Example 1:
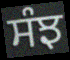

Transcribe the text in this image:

ਸੰਝ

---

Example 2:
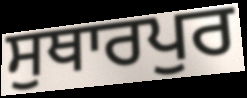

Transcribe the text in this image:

ਸੁਥਾਰਪੁਰ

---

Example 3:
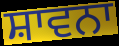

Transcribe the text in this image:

ਸ਼ਾਵਨਾ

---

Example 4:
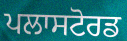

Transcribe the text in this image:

ਪਲਾਸਟੋਰਡ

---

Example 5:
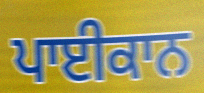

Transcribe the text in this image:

ਪਾਈਕਾਨ